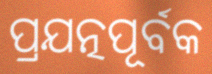
ପ୍ରଯତ୍ନପୂର୍ବକ